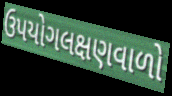
ઉપયોગલક્ષણવાળો